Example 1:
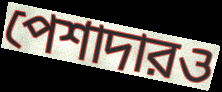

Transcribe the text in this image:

পেশাদারও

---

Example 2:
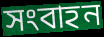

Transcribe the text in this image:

সংবাহন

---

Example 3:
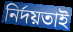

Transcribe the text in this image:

নির্দয়তাই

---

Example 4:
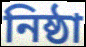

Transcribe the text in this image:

নিষ্ঠা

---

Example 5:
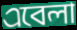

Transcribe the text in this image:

এবেলা